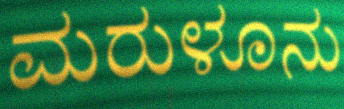
ಮರುಳೂನು